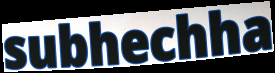
subhechha